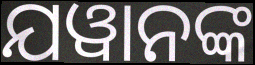
ଯୱାନଙ୍କ